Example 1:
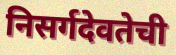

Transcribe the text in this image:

निसर्गदेवतेची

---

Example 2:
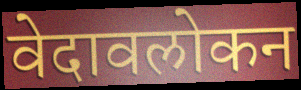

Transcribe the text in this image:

वेदावलोकन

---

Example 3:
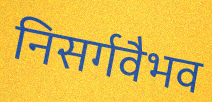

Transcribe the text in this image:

निसर्गवैभव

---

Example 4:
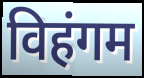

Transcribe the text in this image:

विहंगम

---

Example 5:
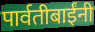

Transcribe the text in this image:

पार्वतीबाईंनी